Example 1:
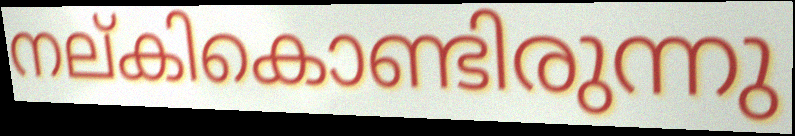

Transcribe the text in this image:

നല്കികൊണ്ടിരുന്നു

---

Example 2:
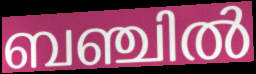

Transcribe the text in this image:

ബഞ്ചിൽ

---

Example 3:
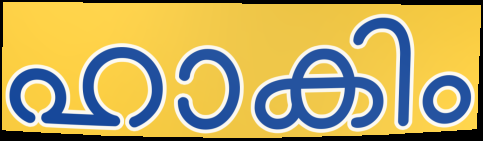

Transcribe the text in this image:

ഹാകിം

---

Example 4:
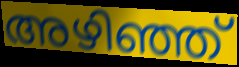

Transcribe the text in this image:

അഴിഞ്ഞ്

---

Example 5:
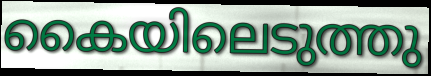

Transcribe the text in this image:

കൈയിലെടുത്തു